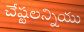
చేష్టలన్నియు